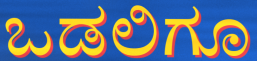
ಒಡಲಿಗೂ